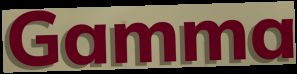
Gamma